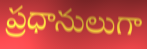
ప్రధానులుగా